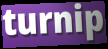
turnip